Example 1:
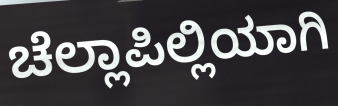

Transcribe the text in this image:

ಚೆಲ್ಲಾಪಿಲ್ಲಿಯಾಗಿ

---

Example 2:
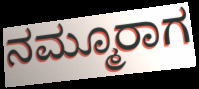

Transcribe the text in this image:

ನಮ್ಮೂರಾಗ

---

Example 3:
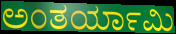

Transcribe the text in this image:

ಅಂತರ್ಯಾಮಿ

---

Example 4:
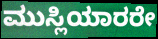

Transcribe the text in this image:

ಮುಸ್ಲಿಯಾರರೇ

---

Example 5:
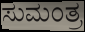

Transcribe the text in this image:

ಸುಮಂತ್ರ